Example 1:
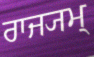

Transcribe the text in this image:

ਰਾਜ੍ਯਮ੍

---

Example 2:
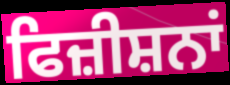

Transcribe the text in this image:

ਫਿਜ਼ੀਸ਼ਨਾਂ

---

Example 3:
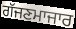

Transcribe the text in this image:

ਗੱਜਣਮਾਜਾਰ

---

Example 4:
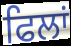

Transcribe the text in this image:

ਫਿਲਾਂ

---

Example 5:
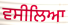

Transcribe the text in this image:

ਵਸੀਲਿਆ